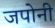
जपोनी